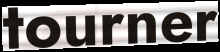
tourner